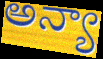
అన్యా